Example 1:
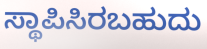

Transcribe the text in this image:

ಸ್ಥಾಪಿಸಿರಬಹುದು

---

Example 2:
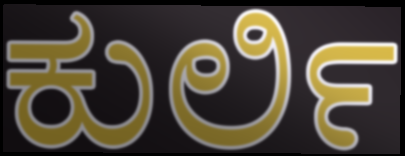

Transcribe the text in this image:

ಕುರ್ಲಿ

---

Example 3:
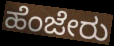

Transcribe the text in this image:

ಹೆಂಜೇರು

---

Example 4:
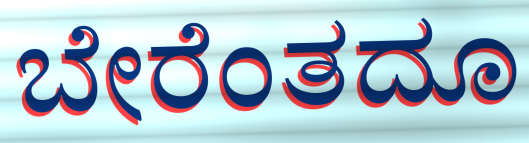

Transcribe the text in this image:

ಬೇರೆಂತದೂ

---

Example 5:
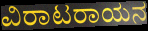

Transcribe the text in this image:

ವಿರಾಟರಾಯನ